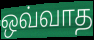
ஒவ்வாத